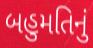
બહુમતિનું